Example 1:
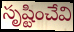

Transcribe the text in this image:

సృష్టించేవి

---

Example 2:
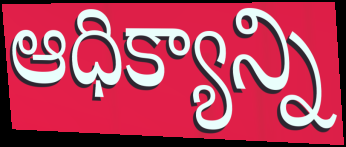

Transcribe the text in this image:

ఆధిక్యాన్ని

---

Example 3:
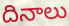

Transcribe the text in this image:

దినాలు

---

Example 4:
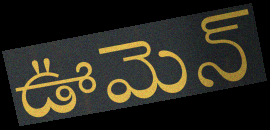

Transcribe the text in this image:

ఊమెన్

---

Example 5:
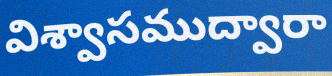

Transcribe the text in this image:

విశ్వాసముద్వారా